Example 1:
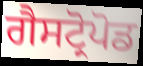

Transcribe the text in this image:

ਗੈਸਟ੍ਰੋਪੋਡ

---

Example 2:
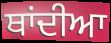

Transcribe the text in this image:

ਥਾਂਦੀਆ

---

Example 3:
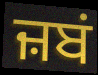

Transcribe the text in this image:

ਜ਼ਬਂ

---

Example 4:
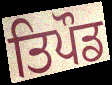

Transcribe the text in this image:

ਤਿਪੌਡ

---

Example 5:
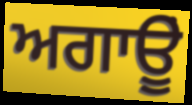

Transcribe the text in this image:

ਅਗਾਊੂਂ